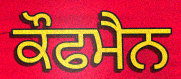
ਕੌਫਮੈਨ